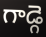
గాడ్గె